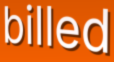
billed